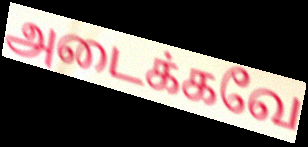
அடைக்கவே